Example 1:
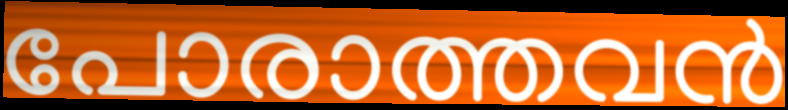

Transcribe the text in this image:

പോരാത്തവൻ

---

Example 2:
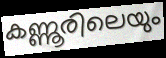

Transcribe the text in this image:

കണ്ണൂരിലെയും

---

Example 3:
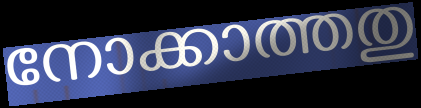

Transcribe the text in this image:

നോക്കാത്തതു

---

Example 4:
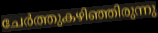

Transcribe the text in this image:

ചേർത്തുകഴിഞ്ഞിരുന്നു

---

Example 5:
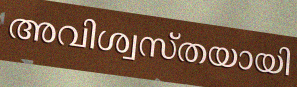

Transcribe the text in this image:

അവിശ്വസ്തയായി